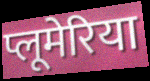
प्लूमेरिया